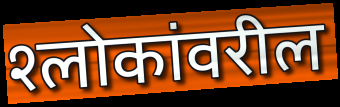
श्लोकांवरील